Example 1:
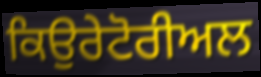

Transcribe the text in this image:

ਕਿਉਰੇਟੋਰੀਅਲ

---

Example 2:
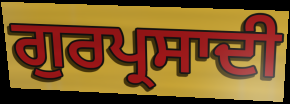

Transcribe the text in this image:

ਗੁਰਪ੍ਰਸਾਦੀ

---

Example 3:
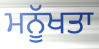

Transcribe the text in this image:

ਮਨੂੱਖਤਾ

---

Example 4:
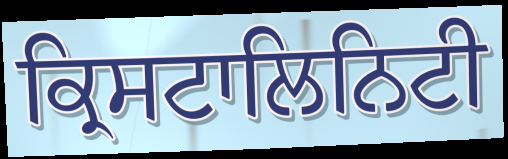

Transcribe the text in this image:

ਕ੍ਰਿਸਟਾਲਿਨਿਟੀ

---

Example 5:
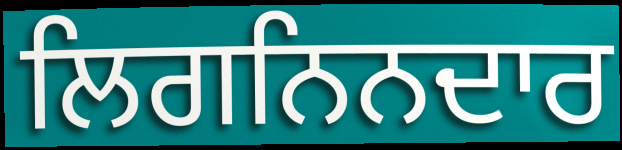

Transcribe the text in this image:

ਲਿਗਨਿਨਦਾਰ